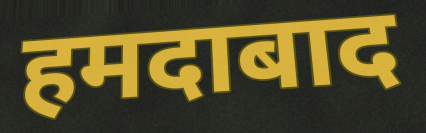
हमदाबाद